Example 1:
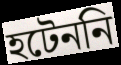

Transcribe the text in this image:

হটেননি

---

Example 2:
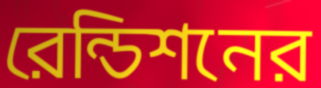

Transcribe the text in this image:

রেন্ডিশনের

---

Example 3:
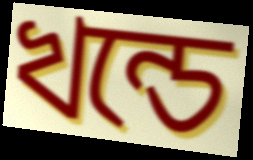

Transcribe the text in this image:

খন্ডে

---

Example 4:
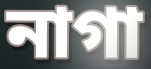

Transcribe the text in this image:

নাগা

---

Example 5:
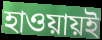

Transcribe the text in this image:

হাওয়ায়ই